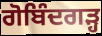
ਗੋਬਿੰਦਗੜ੍ਹ